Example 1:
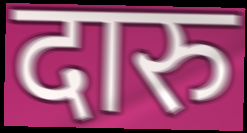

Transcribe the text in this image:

दारु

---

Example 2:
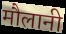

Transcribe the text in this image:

मौलानी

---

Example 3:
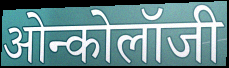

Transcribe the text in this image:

ओन्कोलॉजी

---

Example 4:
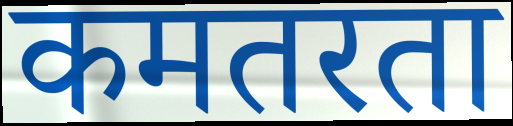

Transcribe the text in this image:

कमतरता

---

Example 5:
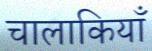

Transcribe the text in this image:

चालाकियाँ